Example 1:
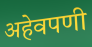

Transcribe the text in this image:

अहेवपणी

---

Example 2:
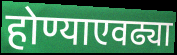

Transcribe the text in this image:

होण्याएवढ्या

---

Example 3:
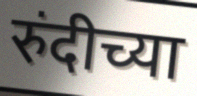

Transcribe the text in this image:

रुंदीच्या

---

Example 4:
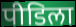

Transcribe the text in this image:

पीडिला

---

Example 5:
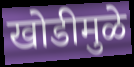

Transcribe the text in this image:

खोडीमुळे